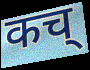
कच्